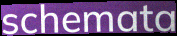
schemata